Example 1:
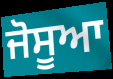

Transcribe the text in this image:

ਜੋਸੂਆ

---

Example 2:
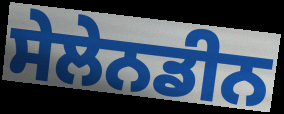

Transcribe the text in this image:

ਸੇਲੇਨਡੀਨ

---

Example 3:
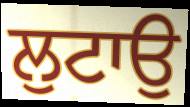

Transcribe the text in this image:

ਲੁਟਾਉ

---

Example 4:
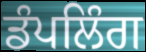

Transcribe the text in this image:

ਡੰਪਲਿੰਗ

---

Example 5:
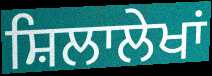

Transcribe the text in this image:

ਸ਼ਿਲਾਲੇਖਾਂ